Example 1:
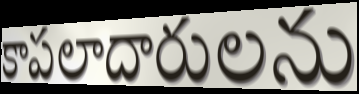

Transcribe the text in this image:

కాపలాదారులను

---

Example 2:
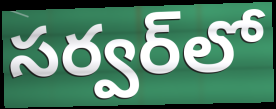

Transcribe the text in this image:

సర్వర్‌లో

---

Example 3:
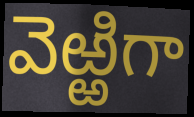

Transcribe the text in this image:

వెఱ్ఱిగా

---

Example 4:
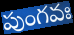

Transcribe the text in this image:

పుంగవః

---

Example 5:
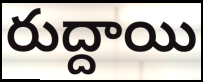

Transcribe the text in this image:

రుద్దాయి